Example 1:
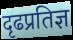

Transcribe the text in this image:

दृढप्रतिज्ञ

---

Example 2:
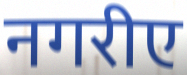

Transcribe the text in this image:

नगरीए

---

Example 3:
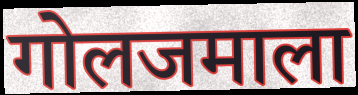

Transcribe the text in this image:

गोलजमाला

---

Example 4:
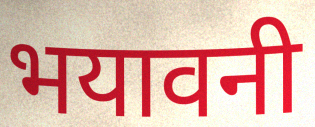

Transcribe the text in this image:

भयावनी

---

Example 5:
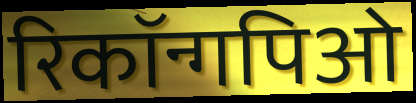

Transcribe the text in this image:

रिकॉन्गपिओ